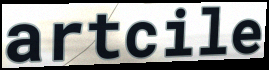
artcile